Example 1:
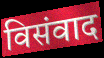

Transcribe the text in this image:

विसंवाद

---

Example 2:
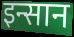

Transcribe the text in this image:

इन्सान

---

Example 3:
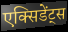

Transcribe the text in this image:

एक्सिडेंट्स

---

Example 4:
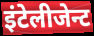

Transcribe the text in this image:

इंटेलीजेन्ट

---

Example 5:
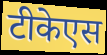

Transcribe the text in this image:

टीकेएस